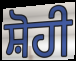
ਸ਼ੋਹੀ